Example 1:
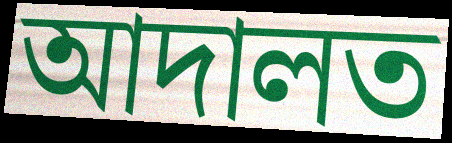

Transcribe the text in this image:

আদালত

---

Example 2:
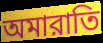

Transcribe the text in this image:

অমারাতি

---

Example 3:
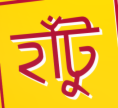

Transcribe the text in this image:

হাঁটু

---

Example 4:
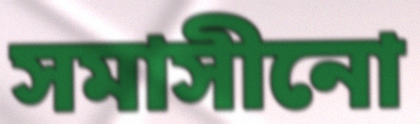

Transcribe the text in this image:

সমাসীনো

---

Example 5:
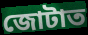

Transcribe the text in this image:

জোটাত